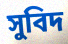
সুবিদ